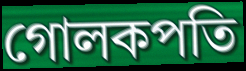
গোলকপতি